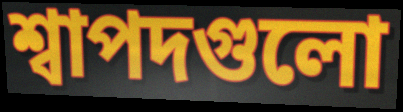
শ্বাপদগুলো